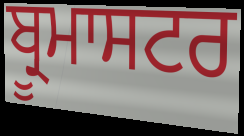
ਬ੍ਰੂਮਾਸਟਰ